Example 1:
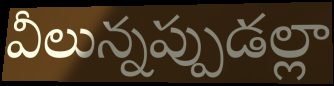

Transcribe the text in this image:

వీలున్నప్పుడల్లా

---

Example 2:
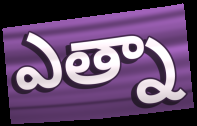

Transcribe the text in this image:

ఎత్నా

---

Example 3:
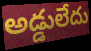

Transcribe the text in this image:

అడ్డులేదు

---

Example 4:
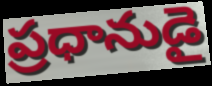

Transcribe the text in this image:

ప్రధానుడై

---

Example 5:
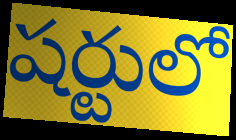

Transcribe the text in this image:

షర్టులో